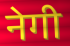
नेगी